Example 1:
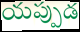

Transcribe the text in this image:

యప్పుడ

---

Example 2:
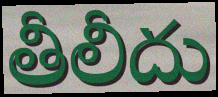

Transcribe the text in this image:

తీలీదు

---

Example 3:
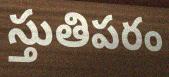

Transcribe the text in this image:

స్తుతిపరం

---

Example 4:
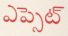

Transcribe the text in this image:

ఎప్సెట్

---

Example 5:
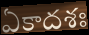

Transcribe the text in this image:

ఏకాదశః